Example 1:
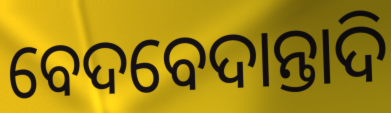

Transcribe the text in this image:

ବେଦବେଦାନ୍ତାଦି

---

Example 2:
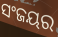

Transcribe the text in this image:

ସଂଜୟର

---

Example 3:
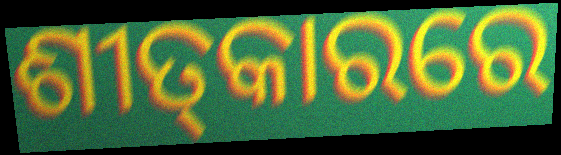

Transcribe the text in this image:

ଶୀତ୍‌କାରରେ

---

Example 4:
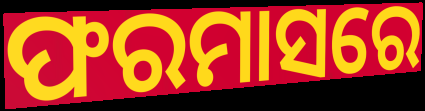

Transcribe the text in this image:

ଫରମାସରେ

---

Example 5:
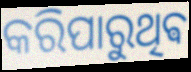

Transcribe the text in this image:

କରିପାରୁଥିଵ